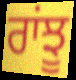
ਰਾਂਝੂ